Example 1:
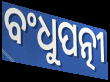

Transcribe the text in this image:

ବଂଧୁପତ୍ନୀ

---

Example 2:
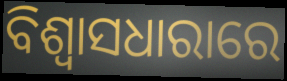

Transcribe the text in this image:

ବିଶ୍ଵାସଧାରାରେ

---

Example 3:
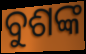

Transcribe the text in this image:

ବୁଶଙ୍କ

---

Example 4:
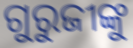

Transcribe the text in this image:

ଗୁରୁଜୀଙ୍କୁ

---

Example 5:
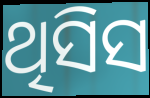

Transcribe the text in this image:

ଥିସିସ